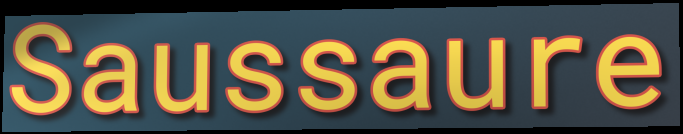
Saussaure